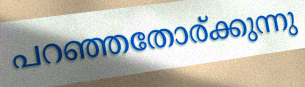
പറഞ്ഞതോര്ക്കുന്നു